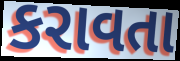
કરાવતા